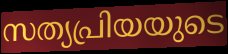
സത്യപ്രിയയുടെ